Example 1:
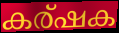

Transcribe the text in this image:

കര്ഷക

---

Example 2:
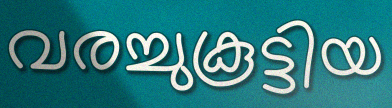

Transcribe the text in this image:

വരച്ചുകൂട്ടിയ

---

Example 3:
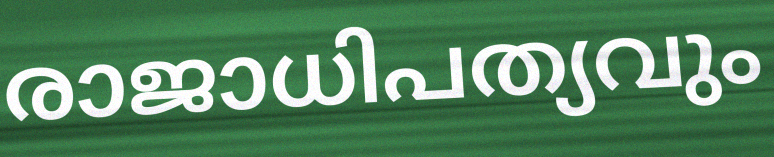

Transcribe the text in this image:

രാജാധിപത്യവും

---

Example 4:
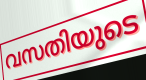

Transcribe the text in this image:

വസതിയുടെ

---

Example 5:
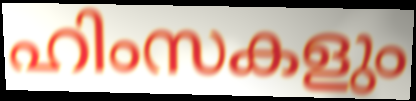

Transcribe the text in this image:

ഹിംസകളും